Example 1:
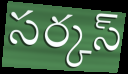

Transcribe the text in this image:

సర్కస్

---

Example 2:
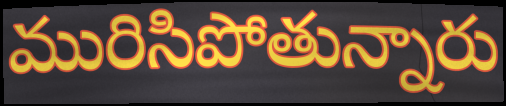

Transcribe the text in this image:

మురిసిపోతున్నారు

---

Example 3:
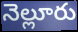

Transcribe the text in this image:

నెల్లూరు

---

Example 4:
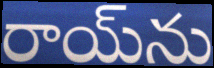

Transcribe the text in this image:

రాయ్‌ను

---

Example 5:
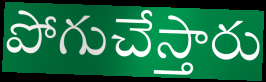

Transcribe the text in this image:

పోగుచేస్తారు